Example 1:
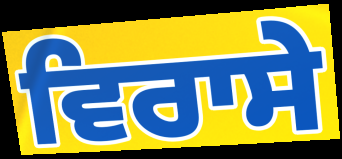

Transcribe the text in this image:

ਵਿਰਾਸੇ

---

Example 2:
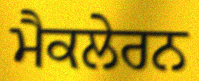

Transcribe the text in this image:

ਮੈਕਲੇਰਨ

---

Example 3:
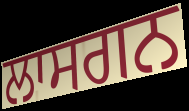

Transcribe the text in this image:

ਲਾਸਗਨ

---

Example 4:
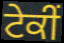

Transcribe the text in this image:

ਟੇਕੀਂ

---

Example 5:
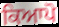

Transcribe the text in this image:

ਕਿਆਪੋ